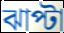
ঝাপ্টা